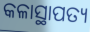
କଳାସ୍ଥାପତ୍ୟ